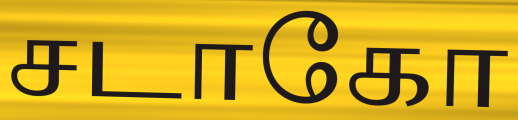
சடாகோ